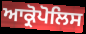
ਆਕ੍ਰੋਪੋਲਿਸ